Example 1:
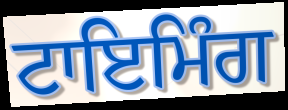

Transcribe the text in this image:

ਟਾਇਮਿੰਗ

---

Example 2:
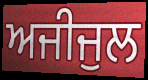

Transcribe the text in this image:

ਅਜੀਜੁਲ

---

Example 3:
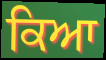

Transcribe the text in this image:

ਕਿਆ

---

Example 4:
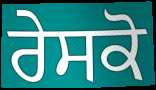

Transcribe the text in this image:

ਰੇਸਕੋ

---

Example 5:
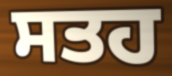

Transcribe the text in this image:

ਸਤਹ